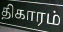
திகாரம்